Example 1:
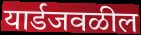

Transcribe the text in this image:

यार्डजवळील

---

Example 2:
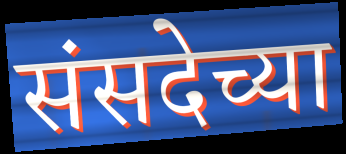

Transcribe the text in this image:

संसदेच्या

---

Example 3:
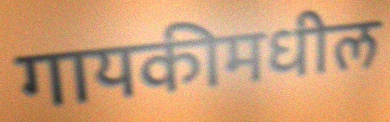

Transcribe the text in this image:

गायकीमधील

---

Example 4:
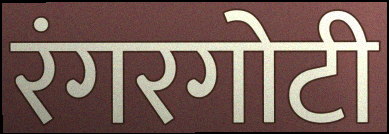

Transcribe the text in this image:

रंगरगोटी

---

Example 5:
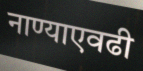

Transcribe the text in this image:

नाण्याएवढी